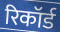
रिकॉर्ड